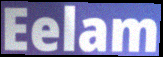
Eelam